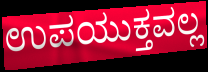
ಉಪಯುಕ್ತವಲ್ಲ